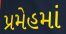
પ્રમેહમાં